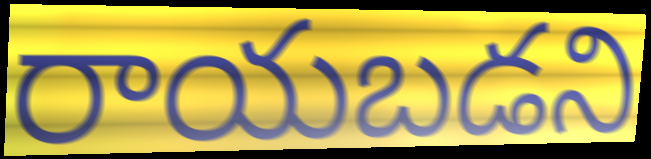
రాయబడని